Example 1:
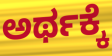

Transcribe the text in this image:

ಅರ್ಥಕ್ಕೆ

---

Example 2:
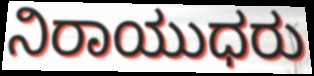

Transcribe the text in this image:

ನಿರಾಯುಧರು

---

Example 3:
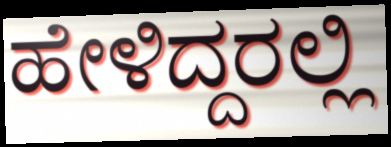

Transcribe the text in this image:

ಹೇಳಿದ್ದರಲ್ಲಿ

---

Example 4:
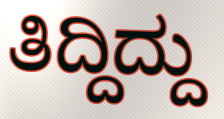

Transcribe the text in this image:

ತಿದ್ದಿದ್ದು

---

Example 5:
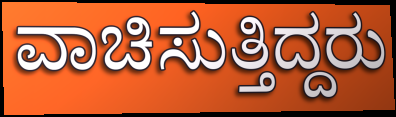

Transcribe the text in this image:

ವಾಚಿಸುತ್ತಿದ್ದರು